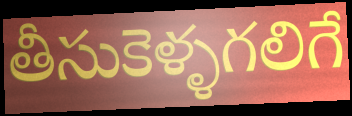
తీసుకెళ్ళగలిగే